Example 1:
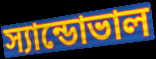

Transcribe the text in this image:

স্যান্ডোভাল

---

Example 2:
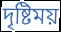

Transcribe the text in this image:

দৃষ্টিময়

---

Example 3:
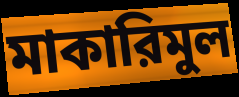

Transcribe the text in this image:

মাকারিমুল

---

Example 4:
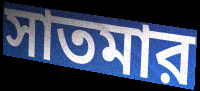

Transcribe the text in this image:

সাতমার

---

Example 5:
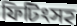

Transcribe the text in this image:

ফিটিংসহ